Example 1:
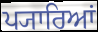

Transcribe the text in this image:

ਪ੍ਯਾਰਿਆਂ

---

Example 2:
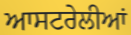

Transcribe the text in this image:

ਆਸਟਰੇਲੀਆਂ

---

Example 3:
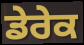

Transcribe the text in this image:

ਡੇਰੇਕ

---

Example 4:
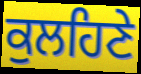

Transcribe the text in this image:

ਕੁਲਹਿਣੇ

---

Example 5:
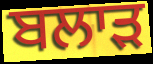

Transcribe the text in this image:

ਬਲਾੜ